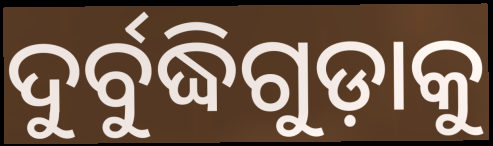
ଦୁର୍ବୁଦ୍ଧିଗୁଡ଼ାକୁ